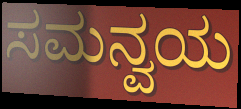
ಸಮನ್ವಯ